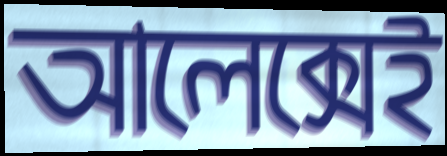
আলেক্সেই